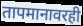
तापमानावरही